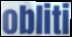
obliti